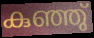
കുഞ്ഞു്